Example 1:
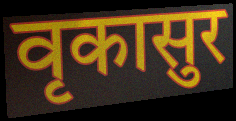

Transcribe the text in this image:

वृकासुर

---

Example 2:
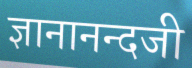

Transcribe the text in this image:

ज्ञानानन्दजी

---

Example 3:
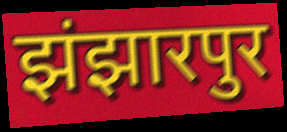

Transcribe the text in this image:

झंझारपुर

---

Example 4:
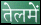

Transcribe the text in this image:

तेलमें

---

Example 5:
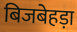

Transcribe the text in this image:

बिजबेहड़ा